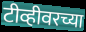
टीव्हीवरच्या